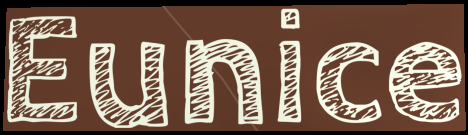
Eunice